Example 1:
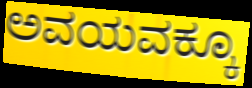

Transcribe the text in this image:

ಅವಯವಕ್ಕೂ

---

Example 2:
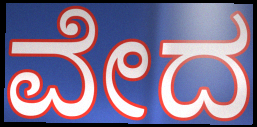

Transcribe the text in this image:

ವೇದ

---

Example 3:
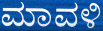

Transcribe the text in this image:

ಮಾವಳಿ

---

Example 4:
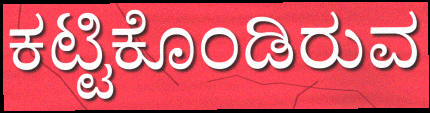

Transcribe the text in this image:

ಕಟ್ಟಿಕೊಂಡಿರುವ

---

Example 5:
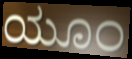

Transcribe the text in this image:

ಯೂಂ